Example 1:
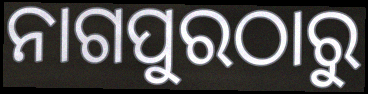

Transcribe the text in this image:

ନାଗପୁରଠାରୁ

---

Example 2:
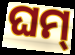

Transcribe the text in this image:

ଘମ୍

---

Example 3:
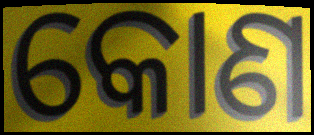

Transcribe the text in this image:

କୋଣ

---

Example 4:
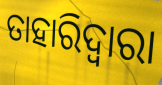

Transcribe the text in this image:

ତାହାରିଦ୍ଵାରା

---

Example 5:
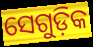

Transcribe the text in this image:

ସେଗୁଡ଼ିକ